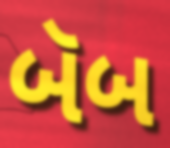
બૅબ